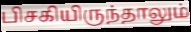
பிசகியிருந்தாலும்